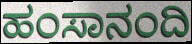
ಹಂಸಾನಂದಿ